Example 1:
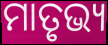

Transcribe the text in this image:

ମାତୃଭ୍ୟ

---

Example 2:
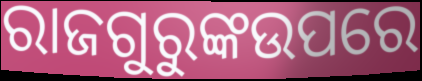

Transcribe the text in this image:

ରାଜଗୁରୁଙ୍କଉପରେ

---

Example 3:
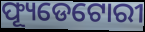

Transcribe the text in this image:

ଫ୍ୟୂଡେଟୋରୀ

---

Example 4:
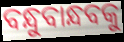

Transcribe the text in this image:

ବନ୍ଧୁବାନ୍ଧବକୁ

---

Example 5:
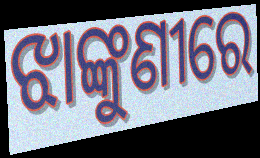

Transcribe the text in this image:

ଝାଙ୍କୁଣୀରେ